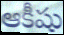
ఆకీషు